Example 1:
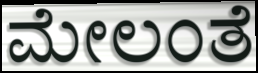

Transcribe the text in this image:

ಮೇಲಂತೆ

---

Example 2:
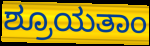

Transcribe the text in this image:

ಶ್ರೂಯತಾಂ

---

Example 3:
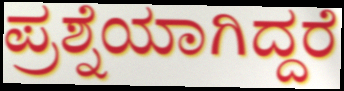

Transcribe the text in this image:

ಪ್ರಶ್ನೆಯಾಗಿದ್ದರೆ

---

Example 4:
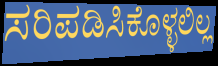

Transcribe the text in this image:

ಸರಿಪಡಿಸಿಕೊಳ್ಳಲಿಲ್ಲ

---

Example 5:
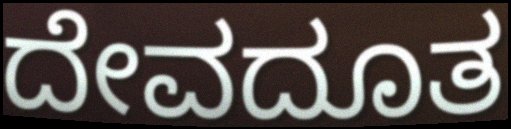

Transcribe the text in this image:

ದೇವದೂತ